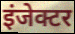
इंजेक्टर